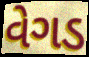
વેગડ